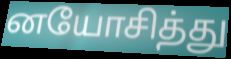
னயோசித்து